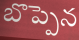
బొప్పెన